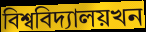
বিশ্ববিদ্যালয়খন